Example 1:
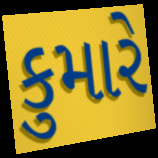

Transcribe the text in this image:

કુમારે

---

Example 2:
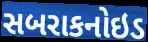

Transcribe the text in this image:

સબરાકનોઇડ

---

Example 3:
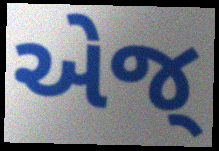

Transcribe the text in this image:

એજ્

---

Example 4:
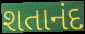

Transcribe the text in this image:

શતાનંદ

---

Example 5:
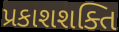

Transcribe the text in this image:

પ્રકાશશક્તિ